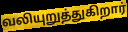
வலியுறுத்துகிறார்